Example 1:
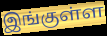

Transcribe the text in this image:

இங்குள்ள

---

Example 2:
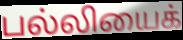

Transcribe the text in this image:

பல்லியைக்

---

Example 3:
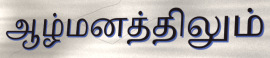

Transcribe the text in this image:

ஆழ்மனத்திலும்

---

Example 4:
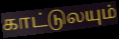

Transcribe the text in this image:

காட்டுலயும்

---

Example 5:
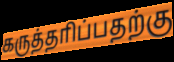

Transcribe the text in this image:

கருத்தரிப்பதற்கு